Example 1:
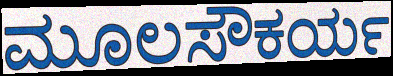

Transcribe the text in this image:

ಮೂಲಸೌಕರ್ಯ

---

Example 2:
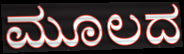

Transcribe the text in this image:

ಮೂಲದ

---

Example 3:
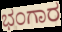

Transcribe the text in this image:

ಭಂಗಾರ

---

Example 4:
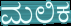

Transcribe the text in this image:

ಮಲಿಕ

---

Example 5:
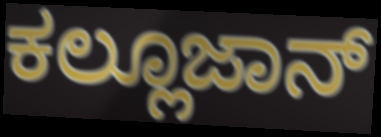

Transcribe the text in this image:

ಕಲ್ಲೂಜಾನ್